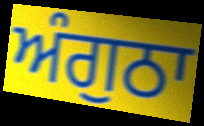
ਅੰਗੁਠਾ